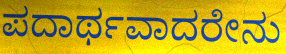
ಪದಾರ್ಥವಾದರೇನು